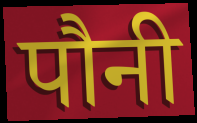
पौनी